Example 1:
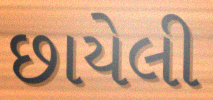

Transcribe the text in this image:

છાયેલી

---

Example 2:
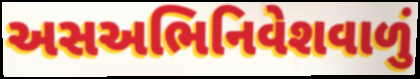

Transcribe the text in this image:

અસઅભિનિવેશવાળું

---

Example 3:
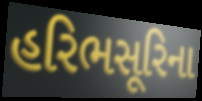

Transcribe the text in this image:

હરિભસૂરિના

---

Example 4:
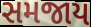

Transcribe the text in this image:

સમજાય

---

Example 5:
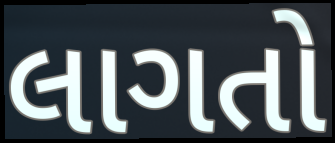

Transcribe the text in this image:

લાગતો